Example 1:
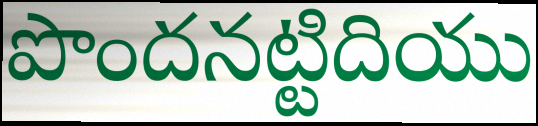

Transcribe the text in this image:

పొందనట్టిదియు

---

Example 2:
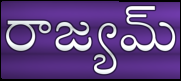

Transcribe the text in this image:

రాజ్యమ్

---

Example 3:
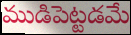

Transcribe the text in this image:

ముడిపెట్టడమే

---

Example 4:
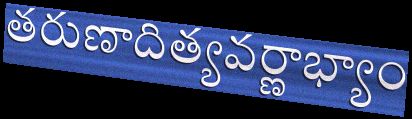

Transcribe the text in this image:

తరుణాదిత్యవర్ణాభ్యాం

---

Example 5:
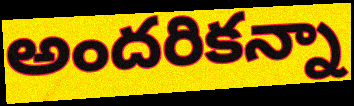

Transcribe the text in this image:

అందరికన్నా